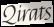
Qirats